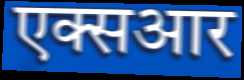
एक्सआर